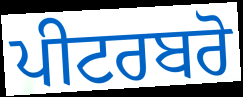
ਪੀਟਰਬਰੋ